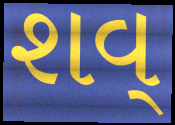
શવ્